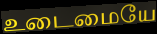
உடைமையே